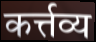
कर्त्तव्य